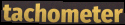
tachometer